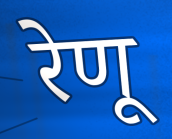
रेणू